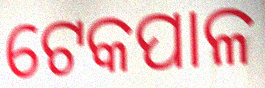
ଟେକପାଳ